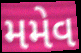
મમેવ